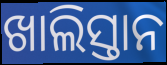
ଖାଲିସ୍ତାନ